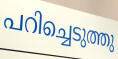
പറിച്ചെടുത്തു